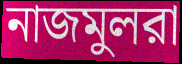
নাজমুলরা